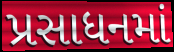
પ્રસાધનમાં